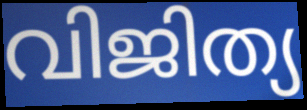
വിജിത്യ